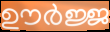
ഊർജ്ജ